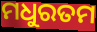
ମଧୁରତମ